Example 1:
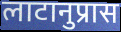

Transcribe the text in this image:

लाटानुप्रास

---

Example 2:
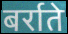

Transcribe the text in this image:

बर्राते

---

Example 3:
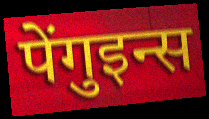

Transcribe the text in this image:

पेंगुइन्स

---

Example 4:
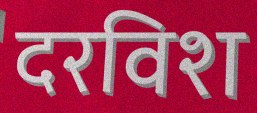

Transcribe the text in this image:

दरविश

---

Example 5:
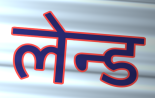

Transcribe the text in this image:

लेन्ड